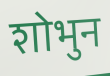
शोभुन